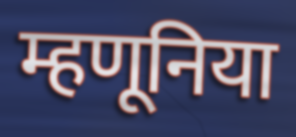
म्हणूनिया